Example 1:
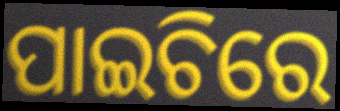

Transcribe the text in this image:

ପାଇଚିରେ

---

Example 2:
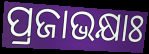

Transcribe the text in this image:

ପ୍ରଜାଭକ୍ଷାଃ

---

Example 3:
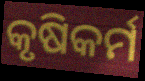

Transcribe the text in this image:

କୃଷିକର୍ମ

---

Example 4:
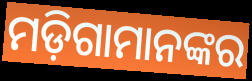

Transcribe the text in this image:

ମଡ଼ିଗାମାନଙ୍କର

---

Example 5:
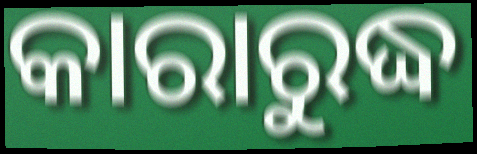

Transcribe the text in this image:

କାରାରୁଦ୍ଧ